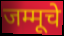
जम्मूचे